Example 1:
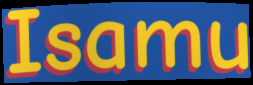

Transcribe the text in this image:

Isamu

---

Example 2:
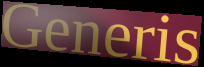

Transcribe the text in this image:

Generis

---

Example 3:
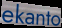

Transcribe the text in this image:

ekanto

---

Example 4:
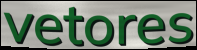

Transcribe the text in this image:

vetores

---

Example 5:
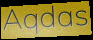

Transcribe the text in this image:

Aqdas